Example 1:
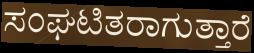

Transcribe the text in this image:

ಸಂಘಟಿತರಾಗುತ್ತಾರೆ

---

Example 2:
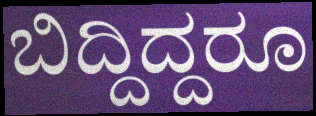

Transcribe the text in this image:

ಬಿದ್ದಿದ್ದರೂ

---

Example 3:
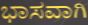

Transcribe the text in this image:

ಭಾಸವಾಗಿ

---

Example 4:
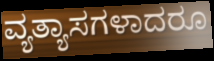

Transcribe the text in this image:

ವ್ಯತ್ಯಾಸಗಳಾದರೂ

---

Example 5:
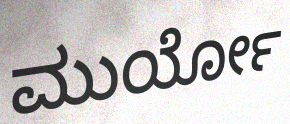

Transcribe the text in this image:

ಮುರ್ಯೋ